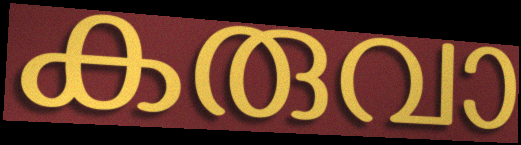
കരുവാ